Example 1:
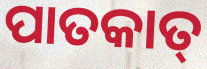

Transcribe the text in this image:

ପାତକାତ୍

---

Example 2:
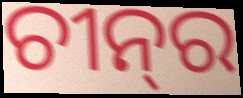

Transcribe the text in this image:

ଚୀନ୍‌ର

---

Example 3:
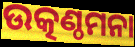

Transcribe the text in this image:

ଉତ୍କଣ୍ଠମନା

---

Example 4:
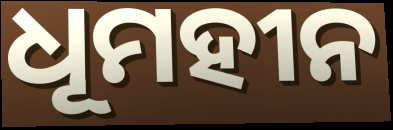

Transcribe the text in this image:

ଧୂମହୀନ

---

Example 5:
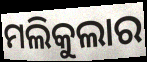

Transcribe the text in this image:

ମଲିକୁଲାର